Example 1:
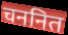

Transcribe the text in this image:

चननित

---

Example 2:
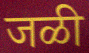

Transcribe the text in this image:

जळी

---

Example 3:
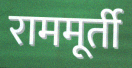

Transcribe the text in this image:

राममूर्ती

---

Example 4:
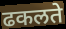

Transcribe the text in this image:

ढकलते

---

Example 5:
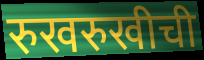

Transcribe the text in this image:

रुखरुखीची